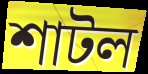
শাটল